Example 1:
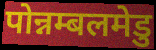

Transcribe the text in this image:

पोन्नम्बलमेडु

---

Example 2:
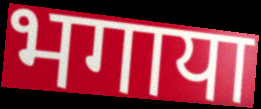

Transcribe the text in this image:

भगाया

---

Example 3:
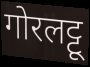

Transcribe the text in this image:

गोरलट्टू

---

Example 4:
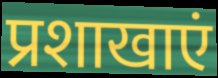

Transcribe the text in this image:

प्रशाखाएं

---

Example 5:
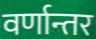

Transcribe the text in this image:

वर्णान्तर